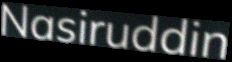
Nasiruddin